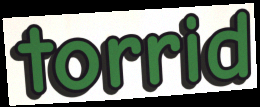
torrid